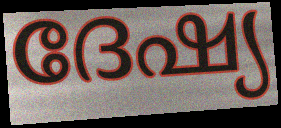
ദേഷ്യ